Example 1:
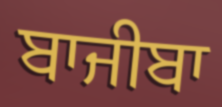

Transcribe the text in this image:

ਬਾਜੀਬਾ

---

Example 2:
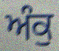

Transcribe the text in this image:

ਅੰਕੁ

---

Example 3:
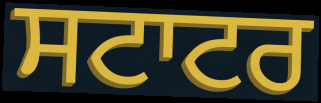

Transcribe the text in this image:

ਸਟਾਟਰ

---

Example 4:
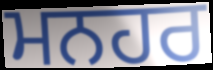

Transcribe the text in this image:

ਮਨਹਰ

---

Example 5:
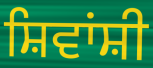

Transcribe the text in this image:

ਸ਼ਿਵਾਂਸ਼ੀ